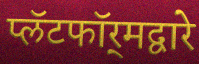
प्लॅटफॉर्मद्वारे